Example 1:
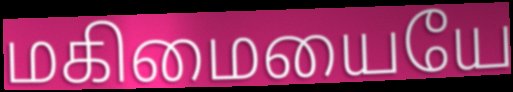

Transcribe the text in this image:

மகிமையையே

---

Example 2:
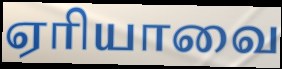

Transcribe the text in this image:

ஏரியாவை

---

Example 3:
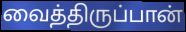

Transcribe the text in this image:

வைத்திருப்பான்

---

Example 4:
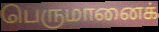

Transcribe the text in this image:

பெருமானைக்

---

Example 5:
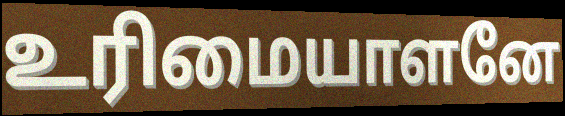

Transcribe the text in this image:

உரிமையாளனே